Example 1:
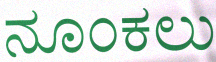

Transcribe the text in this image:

ನೂಂಕಲು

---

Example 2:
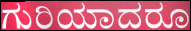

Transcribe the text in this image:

ಗುರಿಯಾದರೂ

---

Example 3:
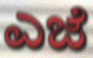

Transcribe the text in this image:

ಎಜೆ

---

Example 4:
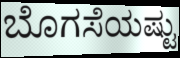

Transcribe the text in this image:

ಬೊಗಸೆಯಷ್ಟು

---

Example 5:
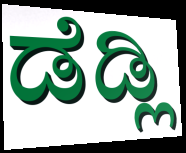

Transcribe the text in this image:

ಡೆಡ್ಲಿ